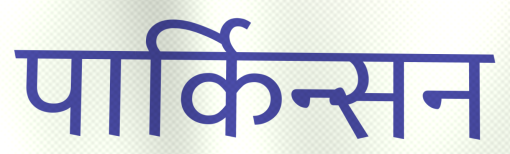
पार्किन्सन